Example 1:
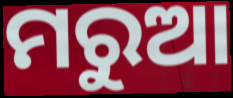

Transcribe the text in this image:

ମରୁଆ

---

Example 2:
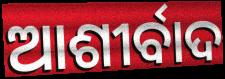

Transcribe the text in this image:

ଆଶୀର୍ବାଦ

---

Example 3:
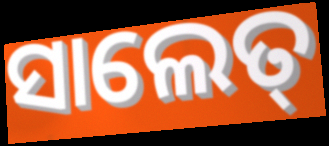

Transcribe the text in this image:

ସାଲେତ୍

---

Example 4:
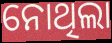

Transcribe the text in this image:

ନୋଥିଲା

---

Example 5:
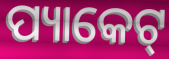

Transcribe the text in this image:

ପ୍ୟାକେଟ୍